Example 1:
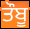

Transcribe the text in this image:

ਤੌਬੂ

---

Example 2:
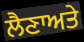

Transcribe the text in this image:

ਲੈਣਾਅਤੇ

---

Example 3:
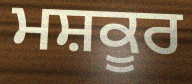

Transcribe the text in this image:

ਮਸ਼ਕੂਰ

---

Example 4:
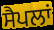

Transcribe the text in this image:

ਸੈਪਲਾਂ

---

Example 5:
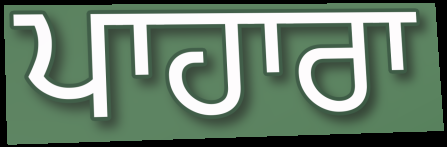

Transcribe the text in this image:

ਪਾਹਾਰਾ